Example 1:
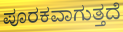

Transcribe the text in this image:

ಪೂರಕವಾಗುತ್ತದೆ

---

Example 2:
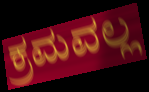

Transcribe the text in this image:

ಕ್ರಮವಲ್ಲ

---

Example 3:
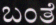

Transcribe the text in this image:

ಬಂತೆ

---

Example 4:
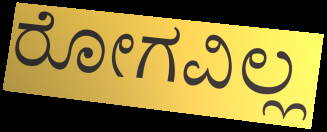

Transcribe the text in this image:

ರೋಗವಿಲ್ಲ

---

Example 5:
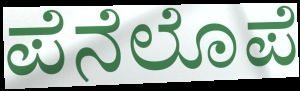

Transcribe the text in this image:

ಪೆನೆಲೊಪೆ